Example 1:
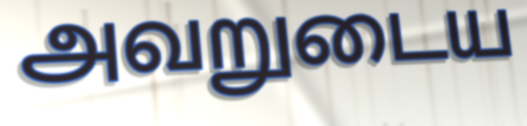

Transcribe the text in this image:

அவறுடைய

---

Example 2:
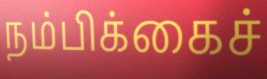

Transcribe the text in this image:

நம்பிக்கைச்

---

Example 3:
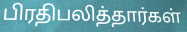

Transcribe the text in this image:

பிரதிபலித்தார்கள்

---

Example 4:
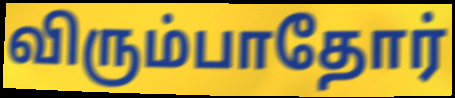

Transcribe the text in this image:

விரும்பாதோர்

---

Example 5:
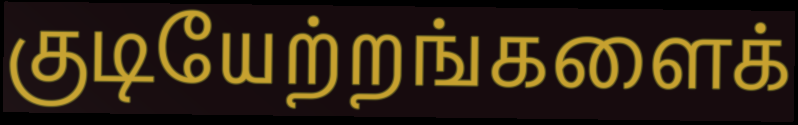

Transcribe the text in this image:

குடியேற்றங்களைக்